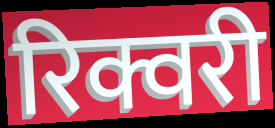
रिक्वरी